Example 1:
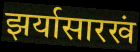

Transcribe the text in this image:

झर्यासारखं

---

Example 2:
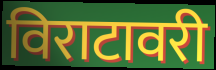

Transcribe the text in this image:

विराटावरी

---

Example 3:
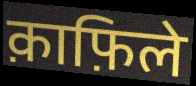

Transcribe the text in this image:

क़ाफ़िले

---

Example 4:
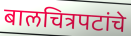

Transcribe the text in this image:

बालचित्रपटांचे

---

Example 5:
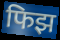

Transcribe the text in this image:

फिझ